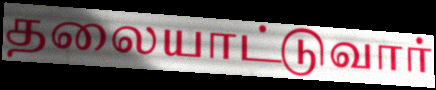
தலையாட்டுவார்